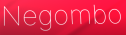
Negombo